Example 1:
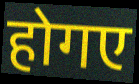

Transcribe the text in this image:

होगए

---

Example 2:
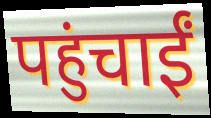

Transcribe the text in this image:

पहुंचाईं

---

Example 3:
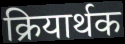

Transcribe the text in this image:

क्रियार्थक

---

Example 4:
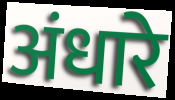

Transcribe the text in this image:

अंधारे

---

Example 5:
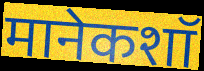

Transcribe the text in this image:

मानेकशॉ